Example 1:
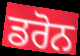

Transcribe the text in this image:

ਡਰੋਨ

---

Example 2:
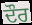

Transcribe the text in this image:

ਦੌਰ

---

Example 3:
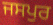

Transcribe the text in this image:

ਜਸਪੁਰ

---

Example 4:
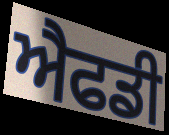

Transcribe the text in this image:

ਐਫਡੀ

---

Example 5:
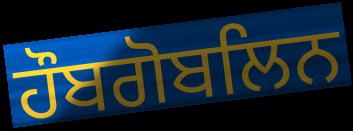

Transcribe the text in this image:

ਹੌਬਗੋਬਲਿਨ